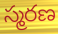
స్మరణ